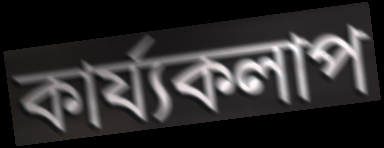
কাৰ্য্যকলাপ